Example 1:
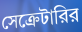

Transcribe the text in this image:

সেক্রেটারির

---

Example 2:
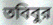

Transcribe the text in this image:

তবিবুর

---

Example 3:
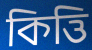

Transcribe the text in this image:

কিত্তি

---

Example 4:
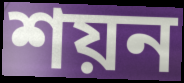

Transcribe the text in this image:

শয়ন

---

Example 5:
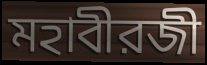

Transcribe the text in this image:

মহাবীরজী